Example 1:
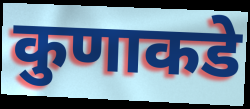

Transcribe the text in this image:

कुणाकडे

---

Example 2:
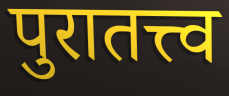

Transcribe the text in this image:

पुरातत्त्व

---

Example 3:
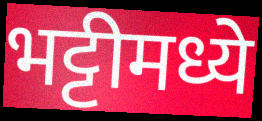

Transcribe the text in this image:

भट्टीमध्ये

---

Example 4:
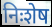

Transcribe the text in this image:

निःशेष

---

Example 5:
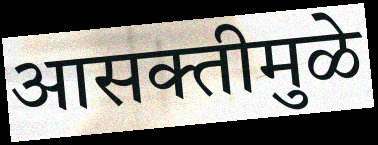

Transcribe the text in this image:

आसक्तीमुळे